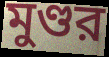
মুণ্ডর